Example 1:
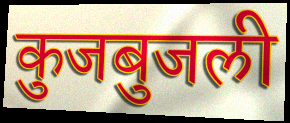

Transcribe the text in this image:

कुजबुजली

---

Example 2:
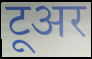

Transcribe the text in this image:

टूअर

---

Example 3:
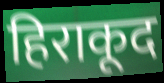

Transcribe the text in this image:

हिराकूद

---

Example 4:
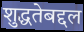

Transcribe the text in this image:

शुद्धतेबद्दल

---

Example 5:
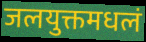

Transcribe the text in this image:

जलयुक्तमधलं